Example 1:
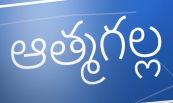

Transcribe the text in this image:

ఆత్మగల్ల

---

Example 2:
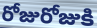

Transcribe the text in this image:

రోజురోజుకి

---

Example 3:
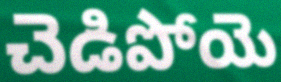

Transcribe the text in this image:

చెడిపోయె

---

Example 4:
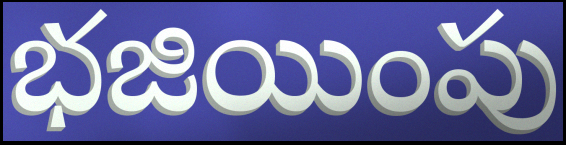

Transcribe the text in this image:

భజియింపు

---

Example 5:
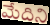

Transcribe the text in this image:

మేదిని